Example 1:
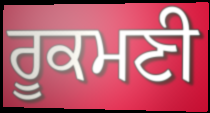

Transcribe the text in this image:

ਰੂਕਮਣੀ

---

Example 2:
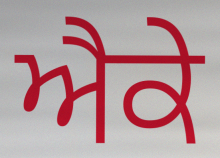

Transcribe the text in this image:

ਐਕੇ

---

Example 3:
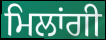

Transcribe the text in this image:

ਮਿਲਾਂਗੀ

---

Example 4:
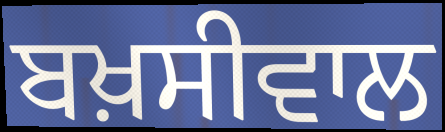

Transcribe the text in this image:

ਬਖ਼ਸੀਵਾਲ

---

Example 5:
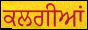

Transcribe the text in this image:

ਕਲਗੀਆਂ